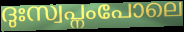
ദുഃസ്വപ്നംപോലെ